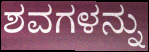
ಶವಗಳನ್ನು